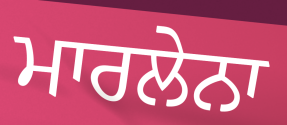
ਮਾਰਲੇਨਾ